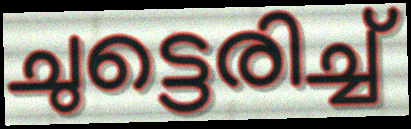
ചുട്ടെരിച്ച്